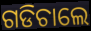
ଗଡିଚାଲେ